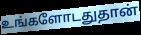
உங்களோடதுதான்